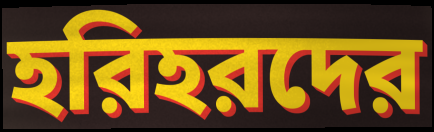
হরিহরদের